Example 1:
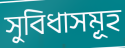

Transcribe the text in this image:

সুবিধাসমূহ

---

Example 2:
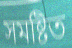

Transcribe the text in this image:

সমষ্টিত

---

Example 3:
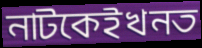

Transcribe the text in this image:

নাটকেইখনত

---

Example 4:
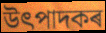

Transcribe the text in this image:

উৎপাদকৰ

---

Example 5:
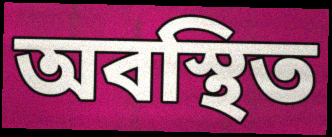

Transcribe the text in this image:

অবস্থিত